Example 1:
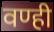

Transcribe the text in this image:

वण्ही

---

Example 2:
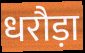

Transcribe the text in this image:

धरौड़ा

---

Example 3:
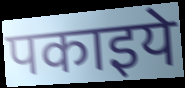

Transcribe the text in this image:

पकाइये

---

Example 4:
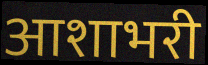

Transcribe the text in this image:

आशाभरी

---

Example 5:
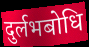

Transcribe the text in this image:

दुर्लभबोधि